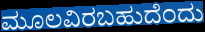
ಮೂಲವಿರಬಹುದೆಂದು